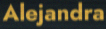
Alejandra